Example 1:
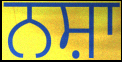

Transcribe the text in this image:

ਨਸ਼ਾ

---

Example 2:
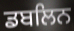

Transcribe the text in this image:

ਡਬਲਿਨ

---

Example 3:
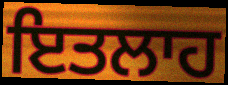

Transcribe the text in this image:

ਇਤਲਾਹ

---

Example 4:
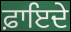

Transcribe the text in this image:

ਫ਼ਾਇਦੇ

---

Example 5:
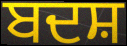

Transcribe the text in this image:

ਬਦਸ਼